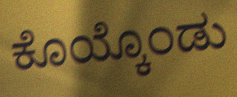
ಕೊಯ್ಕೊಂಡು